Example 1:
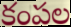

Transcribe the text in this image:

కంపల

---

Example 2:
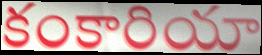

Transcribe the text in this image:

కంకారియా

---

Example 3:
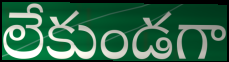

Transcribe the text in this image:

లేకుండగా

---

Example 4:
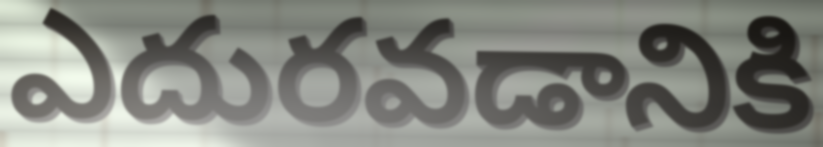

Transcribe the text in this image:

ఎదురవడానికి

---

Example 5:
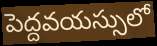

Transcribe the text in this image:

పెద్దవయస్సులో